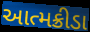
આત્મક્રીડા